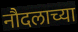
नौदलाच्या